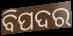
ବିପଦର